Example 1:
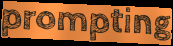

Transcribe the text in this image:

prompting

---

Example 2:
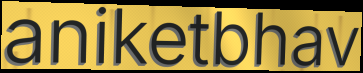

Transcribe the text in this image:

aniketbhav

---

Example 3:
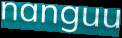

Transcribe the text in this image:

nanguu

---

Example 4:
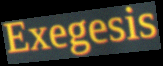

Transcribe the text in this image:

Exegesis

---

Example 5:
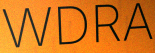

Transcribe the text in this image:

WDRA